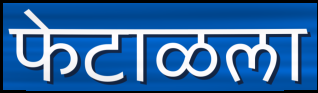
फेटाळला